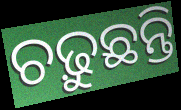
ଚଢ଼ୁଛନ୍ତି